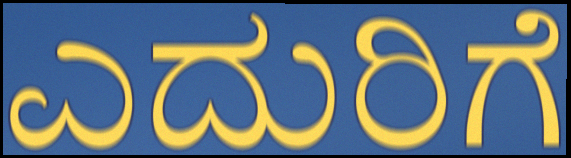
ಎದುರಿಗೆ